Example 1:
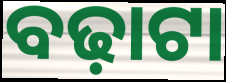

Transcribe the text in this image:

ବଢ଼ାଟା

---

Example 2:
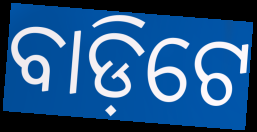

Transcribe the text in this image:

ବାଡ଼ିଟେ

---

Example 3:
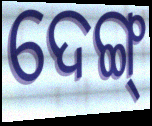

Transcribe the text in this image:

ଦେଙ୍ଗ୍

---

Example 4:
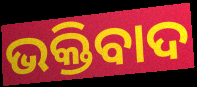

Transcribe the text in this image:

ଭକ୍ତିବାଦ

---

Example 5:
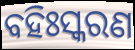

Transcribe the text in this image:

ବହିଃସ୍କରଣ